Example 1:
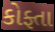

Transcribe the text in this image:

કોફ્તા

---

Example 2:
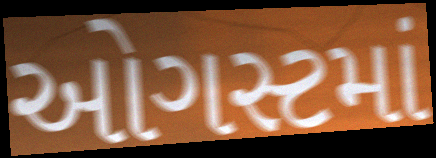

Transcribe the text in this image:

ઓગસ્ટમાં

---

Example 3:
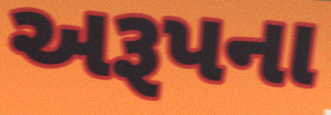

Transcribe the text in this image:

અરૂપના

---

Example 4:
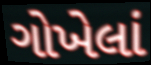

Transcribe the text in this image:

ગોખેલાં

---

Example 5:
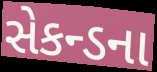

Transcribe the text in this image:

સેકન્ડના